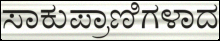
ಸಾಕುಪ್ರಾಣಿಗಳಾದ